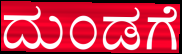
ದುಂಡಗೆ